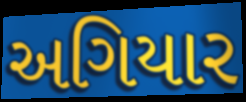
અગિયાર